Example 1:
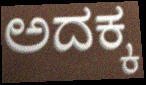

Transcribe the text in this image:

ಅದಕ್ಕ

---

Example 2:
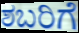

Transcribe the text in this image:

ಶಬರಿಗೆ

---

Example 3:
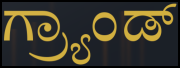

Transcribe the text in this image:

ಗ್ರ್ಯಾಂಡ್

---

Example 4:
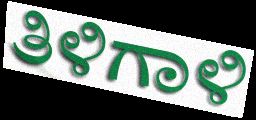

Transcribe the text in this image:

ತಿಳಿಗಾಳಿ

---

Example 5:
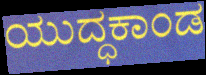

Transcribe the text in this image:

ಯುದ್ಧಕಾಂಡ